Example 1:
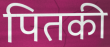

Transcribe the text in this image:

पितकी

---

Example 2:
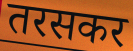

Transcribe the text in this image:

तरसकर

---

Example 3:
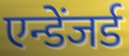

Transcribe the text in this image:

एन्डेंजर्ड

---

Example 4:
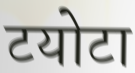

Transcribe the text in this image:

टयोटा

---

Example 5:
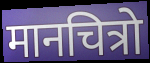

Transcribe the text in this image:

मानचित्रो